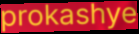
prokashye